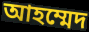
আহম্মেদ